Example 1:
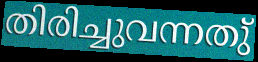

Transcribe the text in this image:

തിരിച്ചുവന്നതു്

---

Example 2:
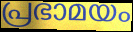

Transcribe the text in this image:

പ്രഭാമയം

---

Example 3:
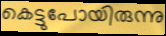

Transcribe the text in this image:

കെട്ടുപോയിരുന്നു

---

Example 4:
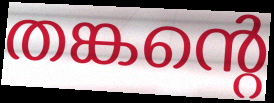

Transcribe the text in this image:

തങ്കന്റെ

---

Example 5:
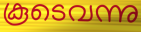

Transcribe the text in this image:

കൂടെവന്നു